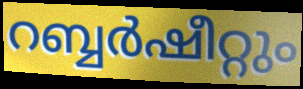
റബ്ബർഷീറ്റും